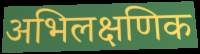
अभिलक्षणिक